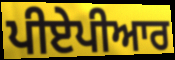
ਪੀਏਪੀਆਰ